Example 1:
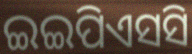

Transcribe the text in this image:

ଇଇପିଏସସି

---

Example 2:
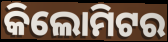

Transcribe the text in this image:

କିଲୋମିଟର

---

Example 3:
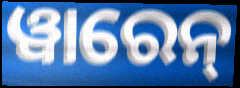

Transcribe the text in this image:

ୱାରେନ୍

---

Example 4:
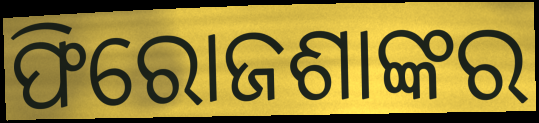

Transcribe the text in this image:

ଫିରୋଜଶାଙ୍କର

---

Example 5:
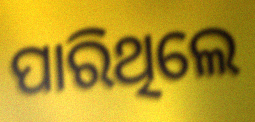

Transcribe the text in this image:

ପାରିଥିଲେ